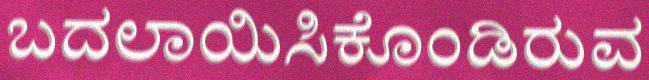
ಬದಲಾಯಿಸಿಕೊಂಡಿರುವ